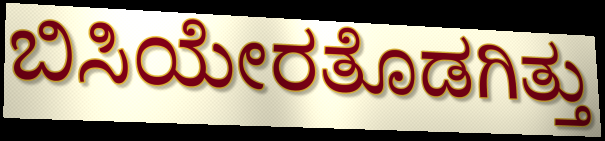
ಬಿಸಿಯೇರತೊಡಗಿತ್ತು